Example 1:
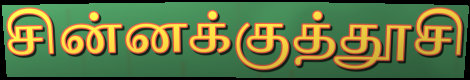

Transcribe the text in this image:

சின்னக்குத்தூசி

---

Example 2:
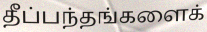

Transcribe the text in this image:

தீப்பந்தங்களைக்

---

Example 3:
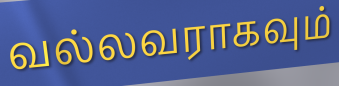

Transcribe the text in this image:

வல்லவராகவும்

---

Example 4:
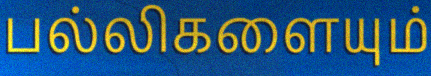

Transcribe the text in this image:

பல்லிகளையும்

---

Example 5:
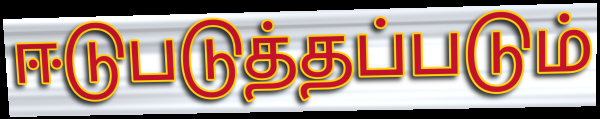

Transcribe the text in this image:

ஈடுபடுத்தப்படும்